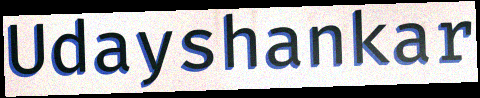
Udayshankar